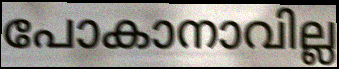
പോകാനാവില്ല